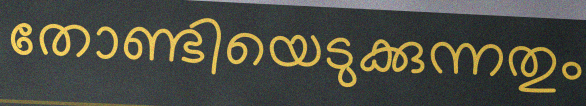
തോണ്ടിയെടുക്കുന്നതും